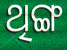
ଥିଙ୍ଗ